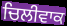
ਚਿਲੀਵਾਕ